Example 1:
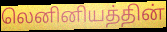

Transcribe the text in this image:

லெனினியத்தின்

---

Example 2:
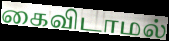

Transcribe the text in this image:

கைவிடாமல்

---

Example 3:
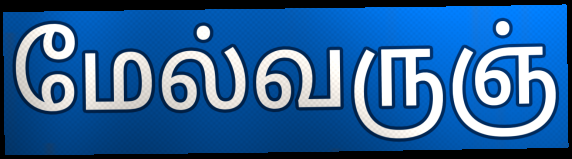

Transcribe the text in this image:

மேல்வருஞ்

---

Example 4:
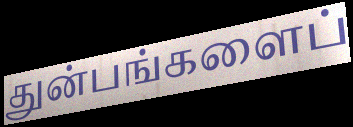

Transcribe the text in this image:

துன்பங்களைப்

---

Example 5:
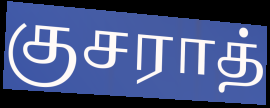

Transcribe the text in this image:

குசராத்